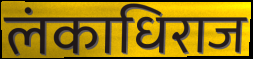
लंकाधिराज